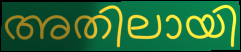
അതിലായി